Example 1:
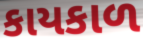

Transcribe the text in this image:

કાયકાળ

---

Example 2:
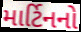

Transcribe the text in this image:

માર્ટિનનો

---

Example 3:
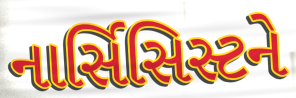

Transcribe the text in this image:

નાર્સિસિસ્ટને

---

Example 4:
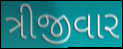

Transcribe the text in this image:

ત્રીજીવાર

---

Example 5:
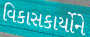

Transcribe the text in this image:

વિકાસકાર્યોને